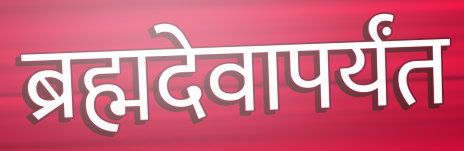
ब्रह्मदेवापर्यंत